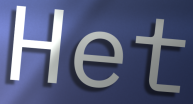
Het